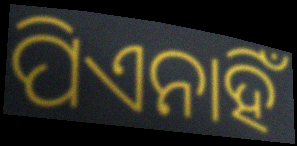
ପିଏନାହିଁ